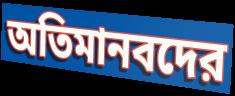
অতিমানবদের